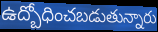
ఉద్బోధించబడుతున్నారు